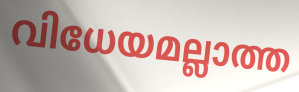
വിധേയമല്ലാത്ത